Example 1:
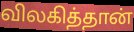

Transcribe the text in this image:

விலகித்தான்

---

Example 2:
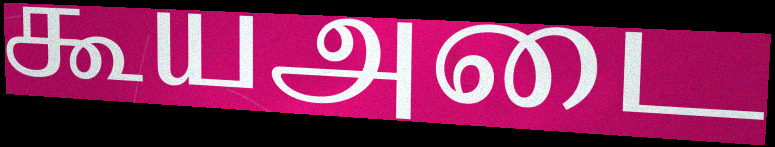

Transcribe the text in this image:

கூயஅடை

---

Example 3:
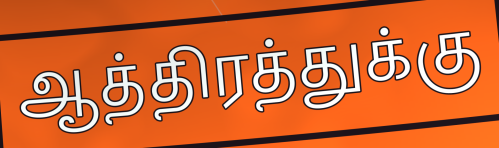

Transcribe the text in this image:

ஆத்திரத்துக்கு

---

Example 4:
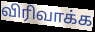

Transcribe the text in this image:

விரிவாக்க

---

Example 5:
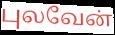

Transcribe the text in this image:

புலவேன்